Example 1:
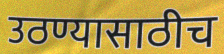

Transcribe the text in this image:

उठण्यासाठीच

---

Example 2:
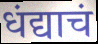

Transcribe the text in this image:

धंद्याचं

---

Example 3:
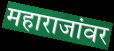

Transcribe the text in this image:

महाराजांवर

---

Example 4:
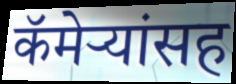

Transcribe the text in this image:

कॅमेऱ्यांसह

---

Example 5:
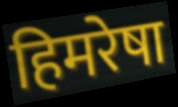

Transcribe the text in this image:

हिमरेषा